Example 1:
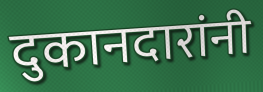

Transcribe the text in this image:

दुकानदारांनी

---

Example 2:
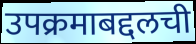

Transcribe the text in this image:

उपक्रमाबद्दलची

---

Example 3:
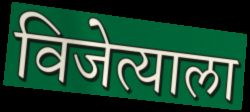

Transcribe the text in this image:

विजेत्याला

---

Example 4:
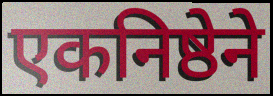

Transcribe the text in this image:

एकनिष्ठेने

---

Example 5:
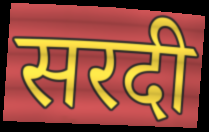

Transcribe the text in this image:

सरदी